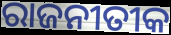
ରାଜନୀତୀକ